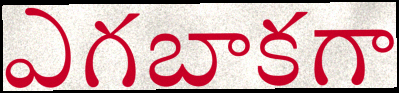
ఎగబాకగా